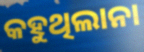
କହୁଥିଲାନା